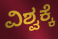
ವಿಶ್ವಕ್ಕೆ